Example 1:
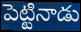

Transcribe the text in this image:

పెట్టినాడు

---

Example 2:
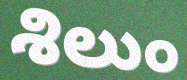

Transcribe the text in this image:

శిలుం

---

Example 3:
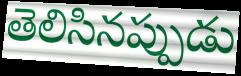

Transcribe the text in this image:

తెలిసినప్పుడు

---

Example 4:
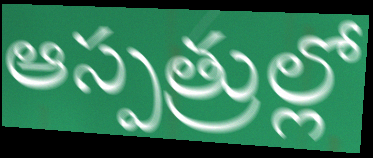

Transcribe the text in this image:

ఆస్పత్రుల్లో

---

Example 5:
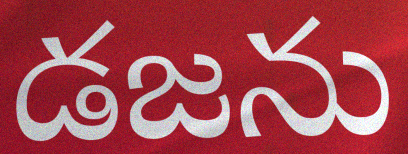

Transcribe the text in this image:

డజను